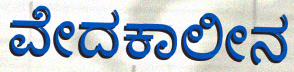
ವೇದಕಾಲೀನ